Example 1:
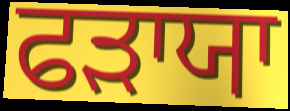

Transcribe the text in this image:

ਫੜਾਯਾ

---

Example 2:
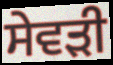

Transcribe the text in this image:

ਸੇਵੜੀ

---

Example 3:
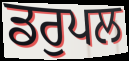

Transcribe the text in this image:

ਡਰੁਪਲ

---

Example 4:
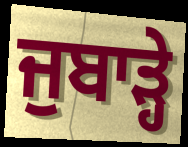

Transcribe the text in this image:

ਜੁਬਾੜ੍ਹੇ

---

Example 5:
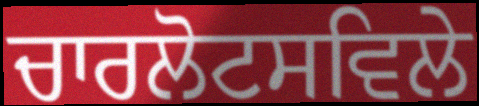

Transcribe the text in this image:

ਚਾਰਲੋਟਸਵਿਲੇ